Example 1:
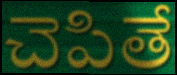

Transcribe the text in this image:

చెపితే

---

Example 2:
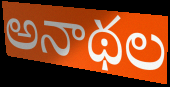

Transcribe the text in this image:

అనాథల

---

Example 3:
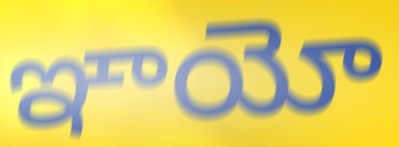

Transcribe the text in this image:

ఞాయో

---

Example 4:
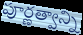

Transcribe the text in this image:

పూర్ణత్వాన్ని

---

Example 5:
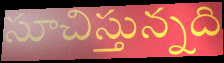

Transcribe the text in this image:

సూచిస్తున్నది